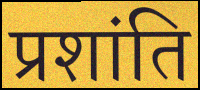
प्रशांति